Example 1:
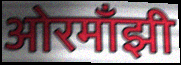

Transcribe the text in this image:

ओरमाँझी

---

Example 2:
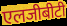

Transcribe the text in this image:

एलजीबीटी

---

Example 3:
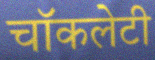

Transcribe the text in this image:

चॉकलेटी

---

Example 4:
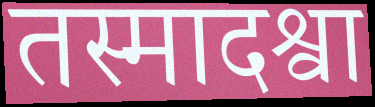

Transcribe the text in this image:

तस्मादश्वा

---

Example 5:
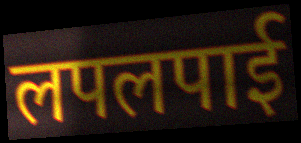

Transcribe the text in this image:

लपलपाई